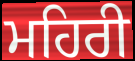
ਮਹਿਰੀ